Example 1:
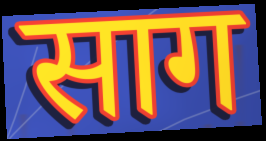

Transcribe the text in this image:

साग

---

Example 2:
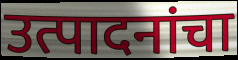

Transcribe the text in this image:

उत्पादनांचा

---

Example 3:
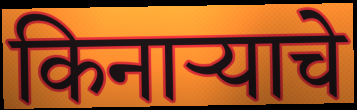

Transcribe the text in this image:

किनाऱ्याचे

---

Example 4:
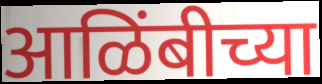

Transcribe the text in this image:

आळिंबीच्या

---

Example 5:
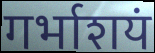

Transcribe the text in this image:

गर्भाशयं